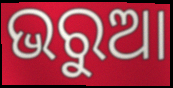
ଭରୁଆ